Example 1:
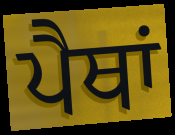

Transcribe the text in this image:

ਪੈਥਾਂ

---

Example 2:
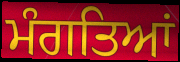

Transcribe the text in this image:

ਮੰਗਤਿਆਂ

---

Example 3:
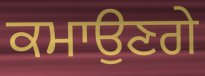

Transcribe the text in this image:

ਕਮਾਉਣਗੇ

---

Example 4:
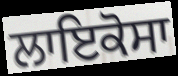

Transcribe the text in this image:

ਲਾਇਕੋਸਾ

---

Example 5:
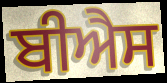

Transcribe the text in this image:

ਬੀਐਸ